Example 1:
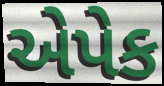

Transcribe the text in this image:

એપેક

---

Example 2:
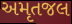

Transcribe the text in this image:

અમૃતજલ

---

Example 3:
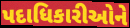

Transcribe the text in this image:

પદાધિકારીઓને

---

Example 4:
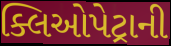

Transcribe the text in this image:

ક્લિઓપેટ્રાની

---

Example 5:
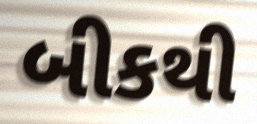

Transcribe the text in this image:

બીકથી